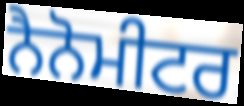
ਨੈਨੋਮੀਟਰ